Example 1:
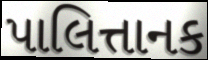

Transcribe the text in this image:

પાલિત્તાનક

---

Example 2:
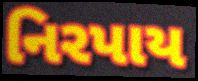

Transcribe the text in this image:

નિરપાય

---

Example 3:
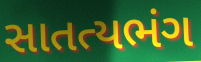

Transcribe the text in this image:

સાતત્યભંગ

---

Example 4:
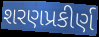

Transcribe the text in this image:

શરણપ્રકીર્ણ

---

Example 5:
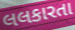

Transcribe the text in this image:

લલકારતા